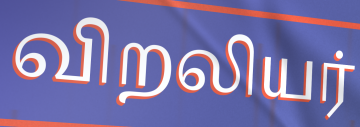
விறலியர்